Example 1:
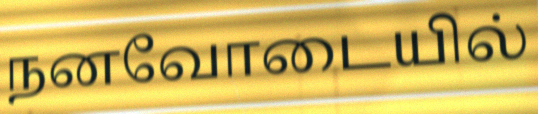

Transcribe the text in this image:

நனவோடையில்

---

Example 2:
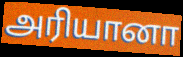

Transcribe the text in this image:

அரியானா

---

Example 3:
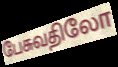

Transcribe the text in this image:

பேசுவதிலோ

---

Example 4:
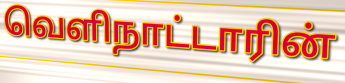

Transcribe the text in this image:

வெளிநாட்டாரின்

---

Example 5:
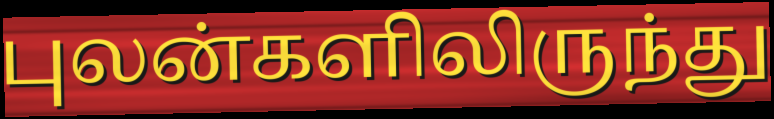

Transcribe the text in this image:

புலன்களிலிருந்து